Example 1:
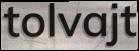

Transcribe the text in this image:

tolvajt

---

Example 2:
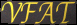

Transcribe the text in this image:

VFAT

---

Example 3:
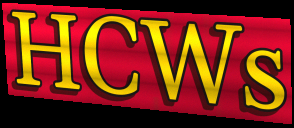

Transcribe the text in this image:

HCWs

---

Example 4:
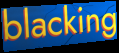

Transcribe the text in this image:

blacking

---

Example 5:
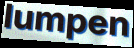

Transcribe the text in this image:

lumpen